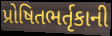
પ્રોષિતભર્તૃકાની